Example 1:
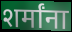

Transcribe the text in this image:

शर्मांना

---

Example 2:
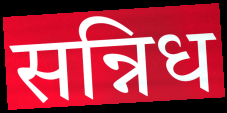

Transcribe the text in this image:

सन्निध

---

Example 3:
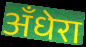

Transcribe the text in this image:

अँधेरा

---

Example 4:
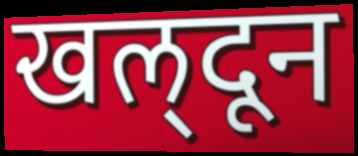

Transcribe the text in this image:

खल्दून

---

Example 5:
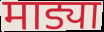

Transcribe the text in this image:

माड्या